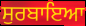
ਸੁਰਬਾਇਆ